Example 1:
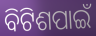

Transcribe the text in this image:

ବିଟିଶପାଇଁ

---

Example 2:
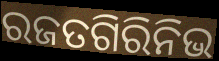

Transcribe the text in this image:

ରଜତଗିରିନିଭ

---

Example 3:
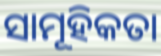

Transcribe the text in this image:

ସାମୂହିକତା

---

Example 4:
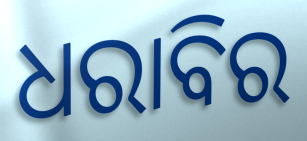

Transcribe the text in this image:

ଧରାବିର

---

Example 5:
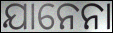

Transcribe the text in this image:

ଯାନେନା